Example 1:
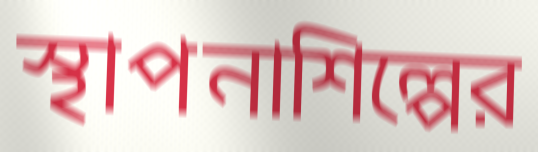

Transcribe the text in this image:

স্থাপনাশিল্পের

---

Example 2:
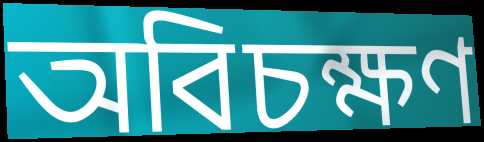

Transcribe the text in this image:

অবিচক্ষণ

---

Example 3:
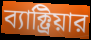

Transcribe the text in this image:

ব্যাক্ট্রিয়ার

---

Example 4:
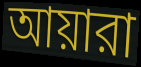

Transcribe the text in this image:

আয়ারা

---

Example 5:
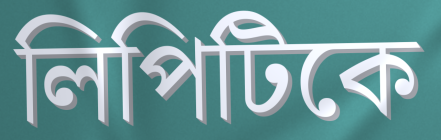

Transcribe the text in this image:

লিপিটিকে